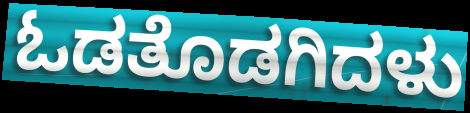
ಓಡತೊಡಗಿದಳು